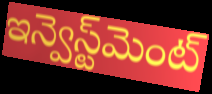
ఇన్వెస్ట్‌మెంట్